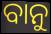
ବାନୁ